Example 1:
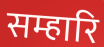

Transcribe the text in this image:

सम्हारि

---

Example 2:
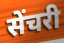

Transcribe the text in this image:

सेंचरी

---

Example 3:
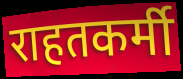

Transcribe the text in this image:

राहतकर्मी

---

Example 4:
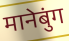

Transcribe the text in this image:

मानेबुंग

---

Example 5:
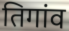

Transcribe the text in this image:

तिगांव